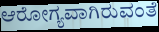
ಆರೋಗ್ಯವಾಗಿರುವಂತೆ